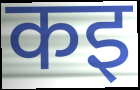
कइ